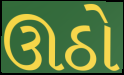
ઊઠો